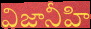
విజానీహి